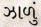
ઝાળું